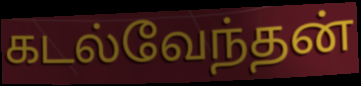
கடல்வேந்தன்